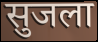
सुजला